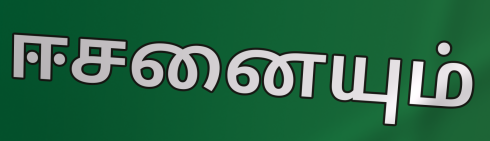
ஈசனையும்